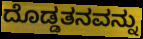
ದೊಡ್ಡತನವನ್ನು